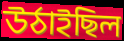
উঠাইছিল